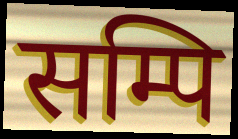
सम्पि